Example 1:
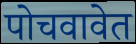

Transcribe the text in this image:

पोचवावेत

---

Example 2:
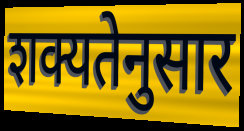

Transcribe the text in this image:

शक्यतेनुसार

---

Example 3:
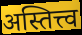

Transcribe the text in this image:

अस्तित्त्व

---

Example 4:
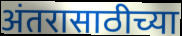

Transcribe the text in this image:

अंतरासाठीच्या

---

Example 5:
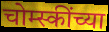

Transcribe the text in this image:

चोम्स्कींच्या